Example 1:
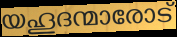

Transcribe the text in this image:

യഹൂദന്മാരോട്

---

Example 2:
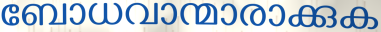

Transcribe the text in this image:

ബോധവാന്മാരാക്കുക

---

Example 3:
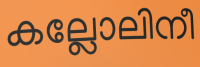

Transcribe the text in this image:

കല്ലോലിനീ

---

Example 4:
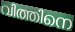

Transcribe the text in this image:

വിത്തിനെ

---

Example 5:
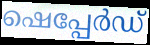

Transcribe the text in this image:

ഷെപ്പേർഡ്